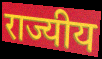
राज्‍यीय